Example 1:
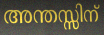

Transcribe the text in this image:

അന്തസ്സിന്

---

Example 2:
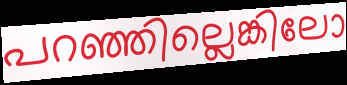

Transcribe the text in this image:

പറഞ്ഞില്ലെങ്കിലോ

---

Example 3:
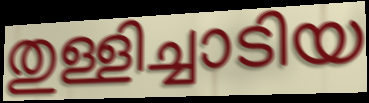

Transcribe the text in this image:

തുള്ളിച്ചാടിയ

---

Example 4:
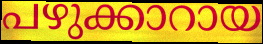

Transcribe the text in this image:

പഴുക്കാറായ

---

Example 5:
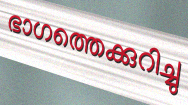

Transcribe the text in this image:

ഭാഗത്തെക്കുറിച്ചു